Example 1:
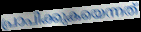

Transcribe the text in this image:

പ്രാപിക്കുകയെന്നത്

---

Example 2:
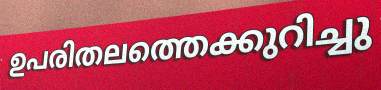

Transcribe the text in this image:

ഉപരിതലത്തെക്കുറിച്ചു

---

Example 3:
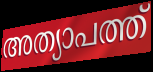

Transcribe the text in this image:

അത്യാപത്ത്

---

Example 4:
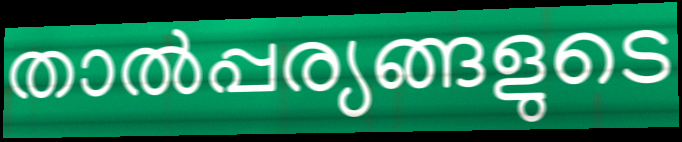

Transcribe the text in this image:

താൽപ്പര്യങ്ങളുടെ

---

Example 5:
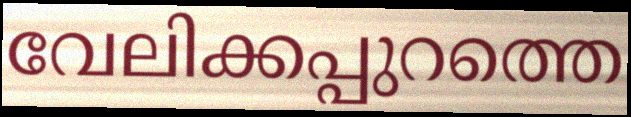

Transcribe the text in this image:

വേലിക്കപ്പുറത്തെ